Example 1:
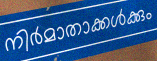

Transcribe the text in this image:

നിർമാതാക്കൾക്കും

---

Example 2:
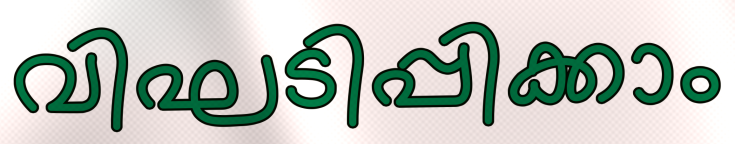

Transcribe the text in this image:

വിഘടിപ്പിക്കാം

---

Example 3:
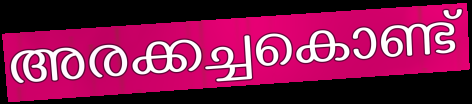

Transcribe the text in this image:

അരക്കച്ചകൊണ്ട്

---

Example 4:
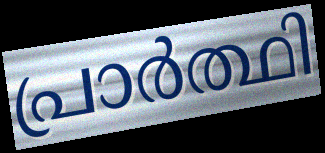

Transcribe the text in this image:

പ്രാർത്ഥി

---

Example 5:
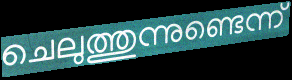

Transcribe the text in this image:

ചെലുത്തുന്നുണ്ടെന്ന്